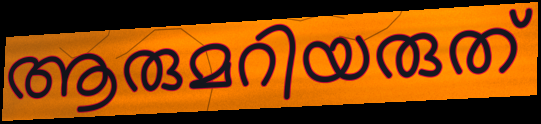
ആരുമറിയരുത്